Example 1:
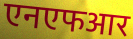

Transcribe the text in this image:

एनएफआर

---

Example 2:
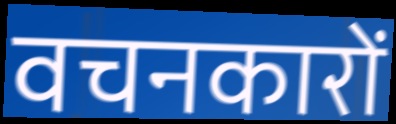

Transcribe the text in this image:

वचनकारों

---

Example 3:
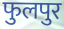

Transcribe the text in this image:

फुलपुर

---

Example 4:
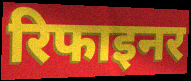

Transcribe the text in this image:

रिफाइनर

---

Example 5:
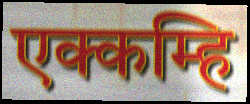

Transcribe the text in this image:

एक्कम्हि